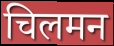
चिलमन